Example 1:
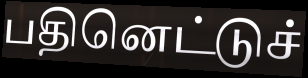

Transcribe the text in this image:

பதினெட்டுச்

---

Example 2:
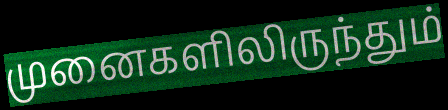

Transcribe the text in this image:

முனைகளிலிருந்தும்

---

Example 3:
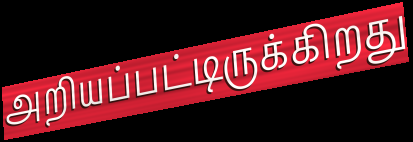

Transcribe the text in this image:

அறியப்பட்டிருக்கிறது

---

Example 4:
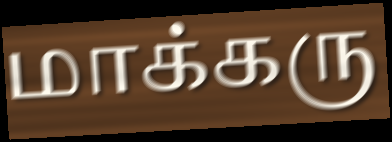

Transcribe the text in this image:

மாக்கரு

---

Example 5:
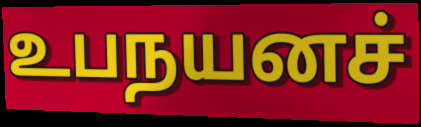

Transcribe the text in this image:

உபநயனச்